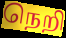
நெறி